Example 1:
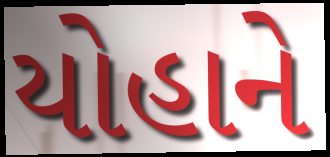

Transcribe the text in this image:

યોહાને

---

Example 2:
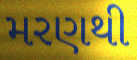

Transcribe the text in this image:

મરણથી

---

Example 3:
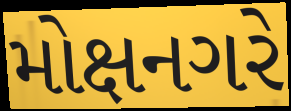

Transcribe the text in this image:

મોક્ષનગરે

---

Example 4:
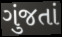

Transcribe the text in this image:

ગુંજતાં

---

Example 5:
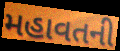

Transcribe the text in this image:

મહાવતની